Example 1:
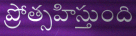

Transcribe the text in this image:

ప్రోత్సహిస్తుంది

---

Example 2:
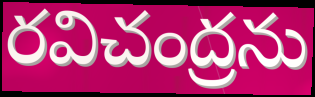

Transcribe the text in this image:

రవిచంద్రను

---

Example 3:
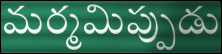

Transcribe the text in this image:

మర్మమిప్పుడు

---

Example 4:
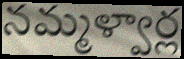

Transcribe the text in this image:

నమ్మళ్వార్ల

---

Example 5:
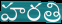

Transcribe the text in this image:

హరతి